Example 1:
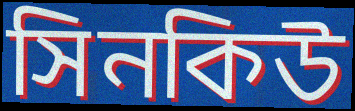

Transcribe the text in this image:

সিনকিউ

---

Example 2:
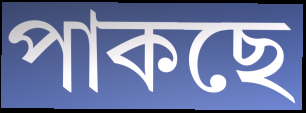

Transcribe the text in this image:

পাকছে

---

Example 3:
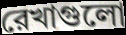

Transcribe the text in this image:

রেখাগুলো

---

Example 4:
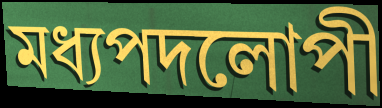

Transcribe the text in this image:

মধ্যপদলোপী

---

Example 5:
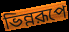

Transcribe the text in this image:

ভিন্নরূপে